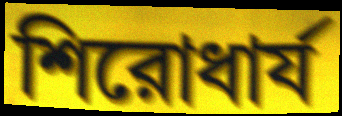
শিরোধার্য